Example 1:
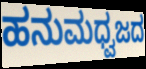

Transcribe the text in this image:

ಹನುಮಧ್ವಜದ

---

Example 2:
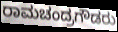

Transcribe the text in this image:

ರಾಮಚಂದ್ರಗೌಡರು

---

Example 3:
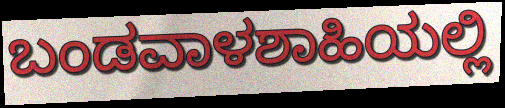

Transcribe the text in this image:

ಬಂಡವಾಳಶಾಹಿಯಲ್ಲಿ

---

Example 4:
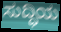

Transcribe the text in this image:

ಸುದ್ಧಿಯ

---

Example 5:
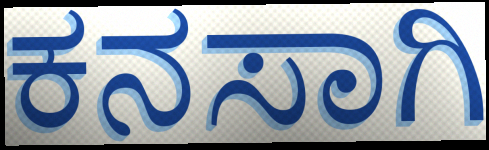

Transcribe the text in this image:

ಕನಸಾಗಿ